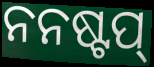
ନନଷ୍ଟପ୍